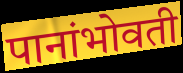
पानांभोवती